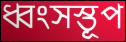
ধ্বংসস্তূপ